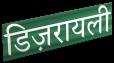
डिज़रायली